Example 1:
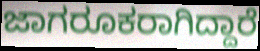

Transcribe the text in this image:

ಜಾಗರೂಕರಾಗಿದ್ದಾರೆ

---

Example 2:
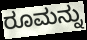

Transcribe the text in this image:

ರೂಮನ್ನು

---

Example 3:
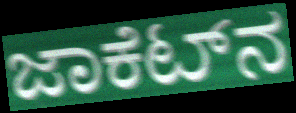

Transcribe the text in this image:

ಜಾಕೆಟ್‌ನ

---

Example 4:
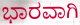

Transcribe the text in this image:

ಭಾರವಾಗಿ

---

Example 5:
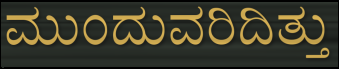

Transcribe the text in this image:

ಮುಂದುವರಿದಿತ್ತು